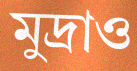
মুদ্রাও